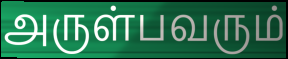
அருள்பவரும்